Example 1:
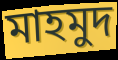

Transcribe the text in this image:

মাহমুদ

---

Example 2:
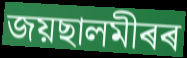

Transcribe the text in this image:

জয়ছালমীৰৰ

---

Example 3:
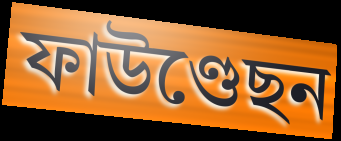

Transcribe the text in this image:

ফাউণ্ডেছন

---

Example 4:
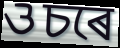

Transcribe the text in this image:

ওচৰে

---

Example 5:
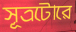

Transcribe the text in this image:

সূত্ৰটোৱে